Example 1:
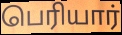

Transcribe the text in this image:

பெரியார்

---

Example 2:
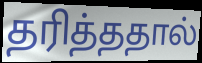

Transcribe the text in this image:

தரித்ததால்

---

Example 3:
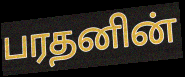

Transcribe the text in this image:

பரதனின்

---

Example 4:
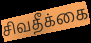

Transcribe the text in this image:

சிவதீக்கை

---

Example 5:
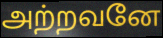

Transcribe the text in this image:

அற்றவனே